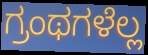
ಗ್ರಂಥಗಳೆಲ್ಲ